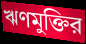
ঋণমুক্তির